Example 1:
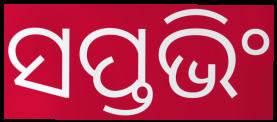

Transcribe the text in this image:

ସପ୍ତଭିଂ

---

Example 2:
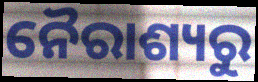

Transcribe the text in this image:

ନୈରାଶ୍ୟରୁ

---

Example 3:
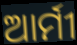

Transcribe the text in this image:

ଆର୍ମୀ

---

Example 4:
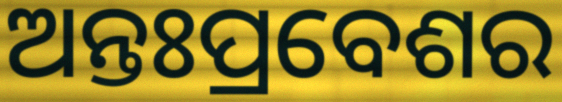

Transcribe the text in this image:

ଅନ୍ତଃପ୍ରବେଶର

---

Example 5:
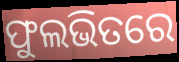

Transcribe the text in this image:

ଫୁଲଭିତରେ